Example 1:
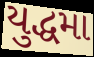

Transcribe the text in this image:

યુદ્ધમા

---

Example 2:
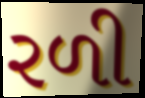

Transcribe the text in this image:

રળી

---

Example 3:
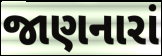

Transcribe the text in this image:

જાણનારાં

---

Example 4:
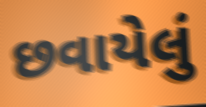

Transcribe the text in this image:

છવાયેલું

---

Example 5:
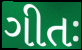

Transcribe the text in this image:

ગીતઃ